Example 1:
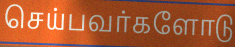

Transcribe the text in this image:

செய்பவர்களோடு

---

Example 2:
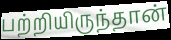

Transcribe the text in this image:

பற்றியிருந்தான்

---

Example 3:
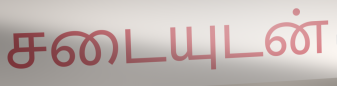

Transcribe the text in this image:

சடையுடன்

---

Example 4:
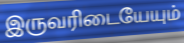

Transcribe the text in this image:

இருவரிடையேயும்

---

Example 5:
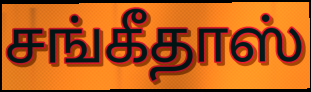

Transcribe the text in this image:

சங்கீதாஸ்